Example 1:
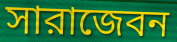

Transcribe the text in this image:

সারাজেবন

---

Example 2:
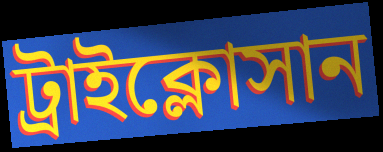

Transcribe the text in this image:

ট্রাইক্লোসান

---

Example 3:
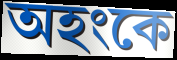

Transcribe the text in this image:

অহংকে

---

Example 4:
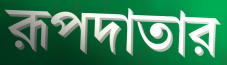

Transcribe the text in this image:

রূপদাতার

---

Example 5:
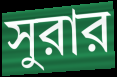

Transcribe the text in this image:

সুরার